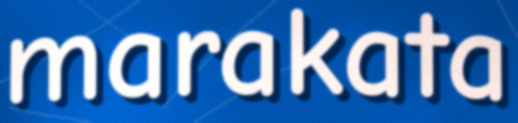
marakata